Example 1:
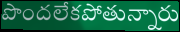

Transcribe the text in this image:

పొందలేకపోతున్నారు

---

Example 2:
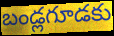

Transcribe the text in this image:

బండ్లగూడకు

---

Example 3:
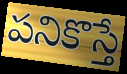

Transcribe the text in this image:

పనికొస్తే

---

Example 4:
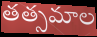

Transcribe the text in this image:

తత్సమాల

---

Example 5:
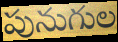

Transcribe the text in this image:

పునుగుల